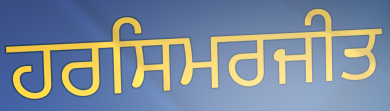
ਹਰਸਿਮਰਜੀਤ